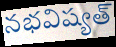
నభవిష్యత్